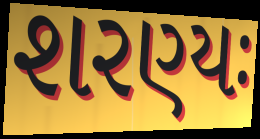
શરણ્યઃ